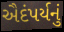
ઐદંપર્યનું